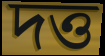
দত্ত